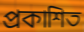
প্রকাশিত